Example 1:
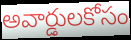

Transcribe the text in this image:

అవార్డులకోసం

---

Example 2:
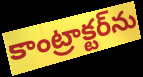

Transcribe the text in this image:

కాంట్రాక్టర్‌ను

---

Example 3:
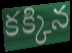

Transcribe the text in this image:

కక్కిన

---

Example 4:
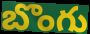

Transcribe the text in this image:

బొంగు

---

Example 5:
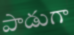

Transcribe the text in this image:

పాడుగా